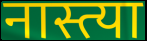
नास्त्या